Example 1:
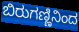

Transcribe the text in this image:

ಬಿರುಗಣ್ಣಿನಿಂದ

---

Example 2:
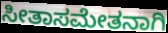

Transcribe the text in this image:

ಸೀತಾಸಮೇತನಾಗಿ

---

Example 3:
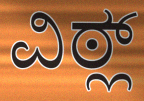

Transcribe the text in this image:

ವಿಠ್ಲ್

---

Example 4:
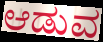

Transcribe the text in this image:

ಆಡುವ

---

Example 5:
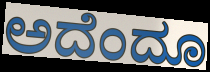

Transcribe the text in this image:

ಅದೆಂದೂ